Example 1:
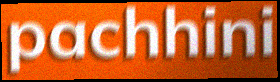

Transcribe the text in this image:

pachhini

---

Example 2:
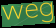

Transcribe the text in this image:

weg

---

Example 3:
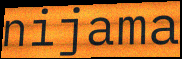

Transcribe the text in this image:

nijama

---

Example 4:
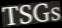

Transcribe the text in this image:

TSGs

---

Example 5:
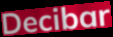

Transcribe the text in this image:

Decibar